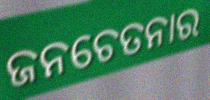
ଜନଚେତନାର